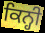
ਕਿਨ੍ਹੀ